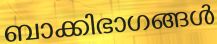
ബാക്കിഭാഗങ്ങൾ